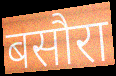
बसौरा